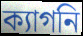
ক্যাগনি